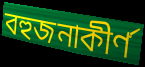
বহুজনাকীর্ণ